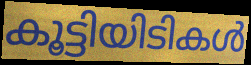
കൂട്ടിയിടികൾ